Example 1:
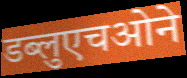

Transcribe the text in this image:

डब्लुएचओने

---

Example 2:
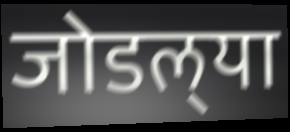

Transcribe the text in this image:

जोडल्या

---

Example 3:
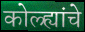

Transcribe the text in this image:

कोल्ह्यांचे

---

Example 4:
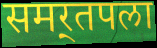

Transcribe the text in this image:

समर्तपला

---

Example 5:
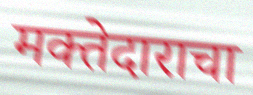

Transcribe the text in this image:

मक्तेदाराचा